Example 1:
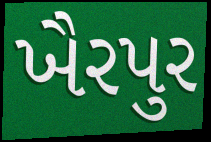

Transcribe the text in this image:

ખૈરપુર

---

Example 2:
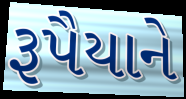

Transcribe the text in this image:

રૂપૈયાને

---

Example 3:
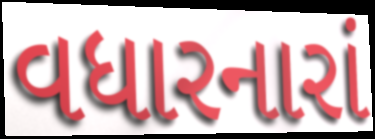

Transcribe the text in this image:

વધારનારાં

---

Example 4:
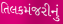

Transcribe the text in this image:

તિલકમંજરીનું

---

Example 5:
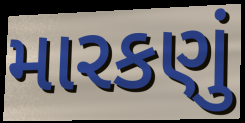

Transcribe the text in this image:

મારકણું